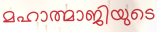
മഹാത്മാജിയുടെ